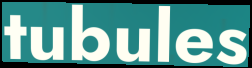
tubules